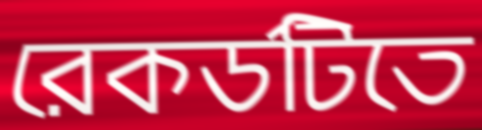
রেকর্ডটিতে